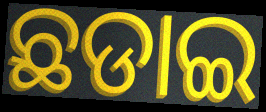
ଛଡାଇ